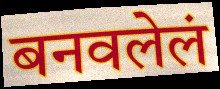
बनवलेलं